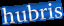
hubris